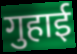
गुहाई